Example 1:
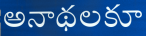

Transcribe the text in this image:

అనాథలకూ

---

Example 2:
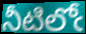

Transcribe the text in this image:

నీటిలోఁ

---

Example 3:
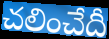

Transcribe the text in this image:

చలించేదీ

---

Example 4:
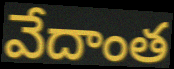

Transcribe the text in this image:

వేదాంత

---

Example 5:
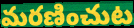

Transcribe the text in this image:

మరణించుట